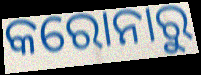
କରୋନାରୁ